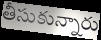
తీసుకున్నారు